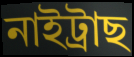
নাইট্ৰাছ